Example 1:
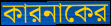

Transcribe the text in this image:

কারনাকের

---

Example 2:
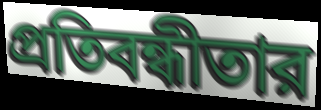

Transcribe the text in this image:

প্রতিবন্ধীতার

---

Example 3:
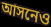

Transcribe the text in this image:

আসনেও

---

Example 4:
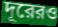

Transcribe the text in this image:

দূরেরও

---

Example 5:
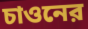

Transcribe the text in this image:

চাওনের